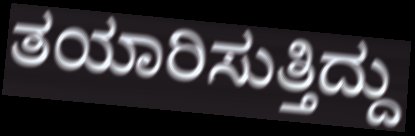
ತಯಾರಿಸುತ್ತಿದ್ದು